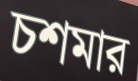
চশমার